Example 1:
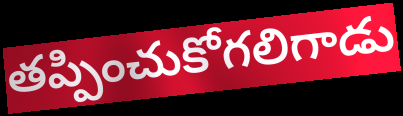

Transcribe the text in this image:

తప్పించుకోగలిగాడు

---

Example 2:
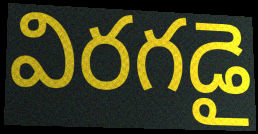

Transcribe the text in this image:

విరగడై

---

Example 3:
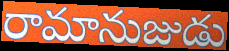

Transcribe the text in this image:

రామానుజుడు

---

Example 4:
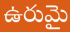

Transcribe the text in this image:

ఉరుమై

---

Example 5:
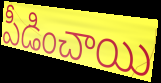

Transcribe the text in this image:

పీడించాయి